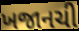
ખજાનચી